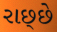
રાછ્છે